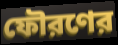
ফৌরণের